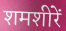
शमशीरें